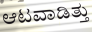
ಆಟವಾಡಿತ್ತು